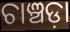
ଚାଞ୍ଚଡ଼ା